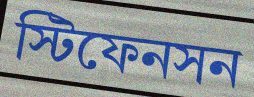
স্টিফেনসন